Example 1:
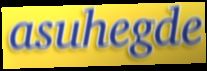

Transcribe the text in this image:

asuhegde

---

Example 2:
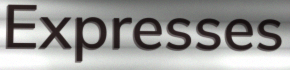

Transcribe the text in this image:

Expresses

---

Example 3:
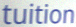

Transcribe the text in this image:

tuition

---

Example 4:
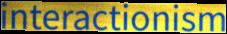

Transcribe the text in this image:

interactionism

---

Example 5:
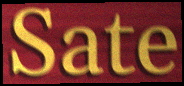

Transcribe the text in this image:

Sate